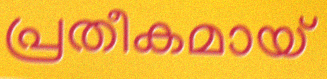
പ്രതീകമായ്